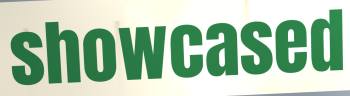
showcased